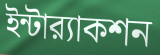
ইন্টার‍্যাকশন